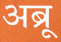
अब्रू